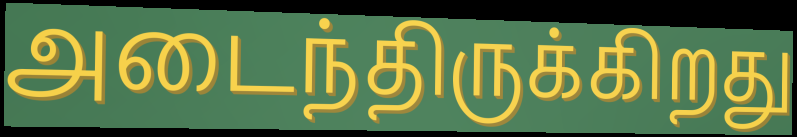
அடைந்திருக்கிறது